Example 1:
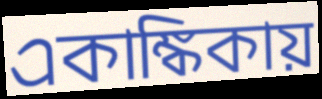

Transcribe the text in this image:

একাঙ্কিকায়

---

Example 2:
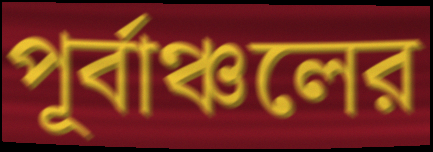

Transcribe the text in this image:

পূর্বাঞ্চলের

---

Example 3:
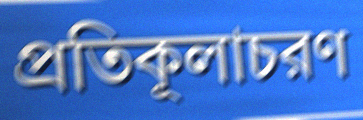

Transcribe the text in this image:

প্রতিকূলাচরণ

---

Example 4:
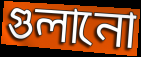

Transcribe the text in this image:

গুলানো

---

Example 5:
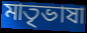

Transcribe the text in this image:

মাতৃভাষা